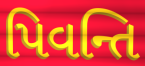
પિવન્તિ